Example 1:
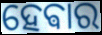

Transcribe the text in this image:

ହେଵାର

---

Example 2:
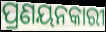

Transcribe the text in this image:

ପ୍ରଣୟନକାରୀ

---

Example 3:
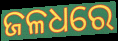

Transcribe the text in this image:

ଜଳଧରେ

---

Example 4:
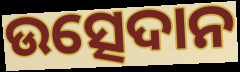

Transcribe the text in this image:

ଉତ୍ସେଦାନ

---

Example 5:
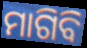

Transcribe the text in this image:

ମାଗିବି